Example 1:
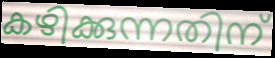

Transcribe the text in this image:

കഴിക്കുന്നതിന്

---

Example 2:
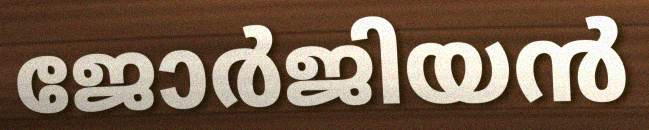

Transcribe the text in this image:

ജോർജിയൻ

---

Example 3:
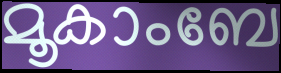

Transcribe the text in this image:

മൂകാംബേ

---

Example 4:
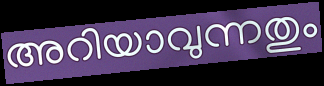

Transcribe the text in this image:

അറിയാവുന്നതും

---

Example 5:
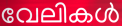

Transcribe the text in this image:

വേലികൾ